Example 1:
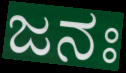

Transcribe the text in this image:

ಜನಃ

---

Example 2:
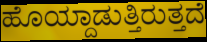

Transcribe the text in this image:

ಹೊಯ್ದಾಡುತ್ತಿರುತ್ತದೆ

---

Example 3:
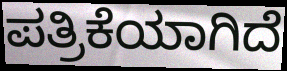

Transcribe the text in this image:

ಪತ್ರಿಕೆಯಾಗಿದೆ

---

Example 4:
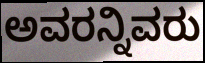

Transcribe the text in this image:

ಅವರನ್ನಿವರು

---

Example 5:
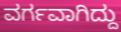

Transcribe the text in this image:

ವರ್ಗವಾಗಿದ್ದು